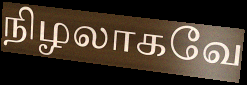
நிழலாகவே